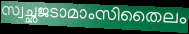
സ്വച്ഛജടാമാംസിതൈലം